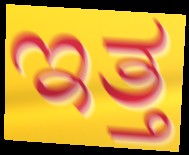
ಇತ್ತ